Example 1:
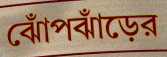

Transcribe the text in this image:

ঝোঁপঝাঁড়ের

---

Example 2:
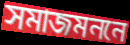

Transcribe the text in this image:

সমাজমননে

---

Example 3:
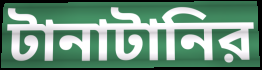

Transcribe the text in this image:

টানাটানির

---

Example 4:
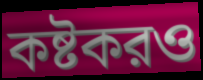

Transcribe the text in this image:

কষ্টকরও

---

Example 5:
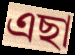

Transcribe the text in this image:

এছা